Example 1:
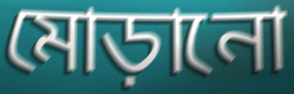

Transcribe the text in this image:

মোড়ানো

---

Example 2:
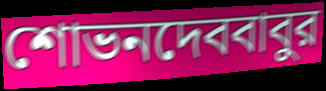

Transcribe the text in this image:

শোভনদেববাবুর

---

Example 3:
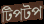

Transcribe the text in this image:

টিপটপ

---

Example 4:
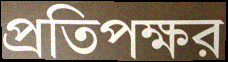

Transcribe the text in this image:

প্রতিপক্ষর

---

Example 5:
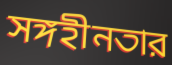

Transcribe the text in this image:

সঙ্গহীনতার